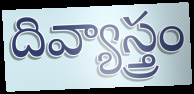
దివ్యాస్త్రం